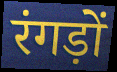
रंगड़ों